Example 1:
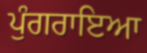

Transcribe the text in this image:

ਪੁੰਗਰਾਇਆ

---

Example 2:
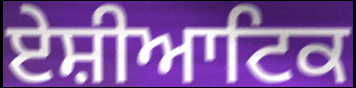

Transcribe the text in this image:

ਏਸ਼ੀਆਟਿਕ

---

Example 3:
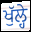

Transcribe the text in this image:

ਖੁੱਲ੍ਹੇ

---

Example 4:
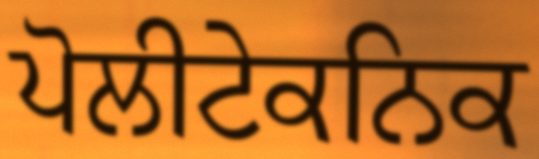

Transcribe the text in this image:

ਪੋਲੀਟੇਕਨਿਕ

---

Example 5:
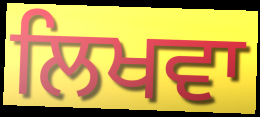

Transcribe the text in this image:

ਲਿਖਵਾ